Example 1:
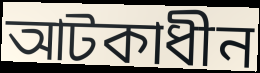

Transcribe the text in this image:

আটকাধীন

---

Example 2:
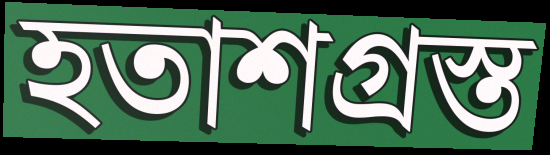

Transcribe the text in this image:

হতাশগ্ৰস্ত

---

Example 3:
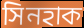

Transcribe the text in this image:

সিনহাক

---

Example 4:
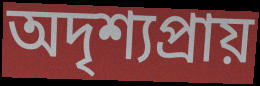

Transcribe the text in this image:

অদৃশ্যপ্ৰায়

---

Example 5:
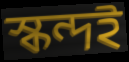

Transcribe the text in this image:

স্কন্দই